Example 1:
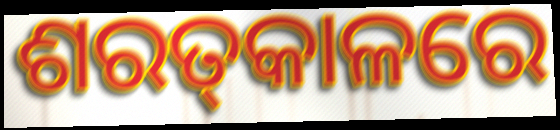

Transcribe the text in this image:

ଶରତ୍‌କାଳରେ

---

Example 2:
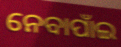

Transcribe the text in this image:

ନେବାପାଁଇ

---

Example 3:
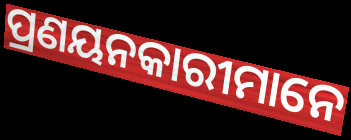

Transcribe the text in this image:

ପ୍ରଣୟନକାରୀମାନେ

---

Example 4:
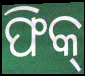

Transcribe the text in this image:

ଫିକ୍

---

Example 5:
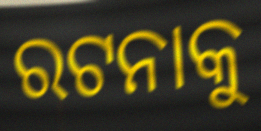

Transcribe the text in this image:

ରଟନାକୁ